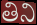
తిని